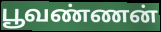
பூவண்ணன்